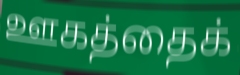
ஊகத்தைக்